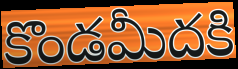
కొండమీదకి